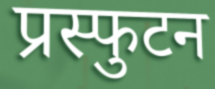
प्रस्फुटन